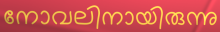
നോവലിനായിരുന്നു